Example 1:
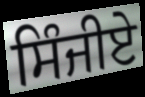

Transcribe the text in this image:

ਸਿੰਜੀਏ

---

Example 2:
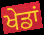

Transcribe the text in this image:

ਖੇਡਾਂ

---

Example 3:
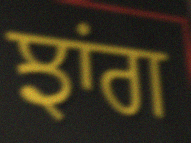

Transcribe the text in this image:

ਝਾਂਗ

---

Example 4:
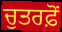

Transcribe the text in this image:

ਚੁਤਰਫ਼ੋਂ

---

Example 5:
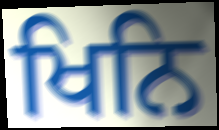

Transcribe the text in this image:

ਖਿਨਿ